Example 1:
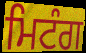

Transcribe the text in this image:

ਮਿਟੰਗ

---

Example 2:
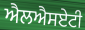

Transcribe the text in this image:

ਐਲਐਸਏਟੀ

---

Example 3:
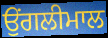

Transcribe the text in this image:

ਉਂਗਲੀਮਾਲ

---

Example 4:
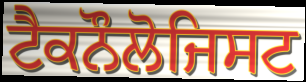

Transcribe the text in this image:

ਟੈਕਨੌਲੋਜਿਸਟ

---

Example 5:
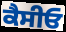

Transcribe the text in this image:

ਕੈਸੀਓ